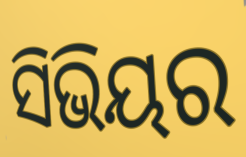
ସିଭିୟର